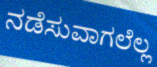
ನಡೆಸುವಾಗಲೆಲ್ಲ